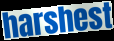
harshest